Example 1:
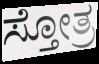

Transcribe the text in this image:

ಸ್ತೋತ್ರ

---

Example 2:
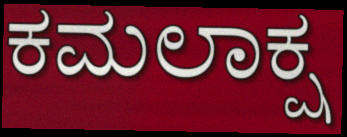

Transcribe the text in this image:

ಕಮಲಾಕ್ಷ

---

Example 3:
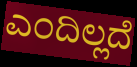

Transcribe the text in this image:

ಎಂದಿಲ್ಲದೆ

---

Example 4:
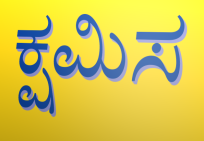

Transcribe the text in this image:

ಕ್ಷಮಿಸ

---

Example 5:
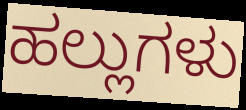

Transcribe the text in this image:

ಹಲ್ಲುಗಳು